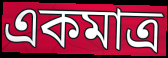
একমাত্ৰ